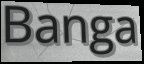
Banga